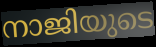
നാജിയുടെ